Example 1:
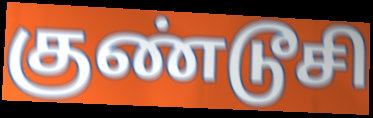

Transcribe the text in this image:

குண்டூசி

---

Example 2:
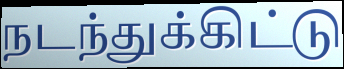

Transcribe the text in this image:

நடந்துக்கிட்டு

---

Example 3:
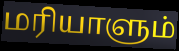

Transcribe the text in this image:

மரியாளும்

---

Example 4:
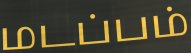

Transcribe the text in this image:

மடப்பம்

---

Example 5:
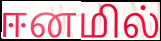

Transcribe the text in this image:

ஈனமில்